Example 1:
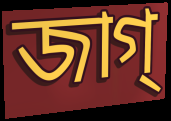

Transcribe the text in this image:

জাগ্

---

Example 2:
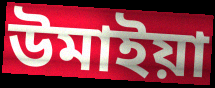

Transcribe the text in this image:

উমাইয়া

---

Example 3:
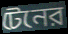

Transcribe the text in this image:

টেনের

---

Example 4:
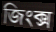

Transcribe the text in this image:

জিংক্স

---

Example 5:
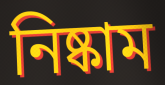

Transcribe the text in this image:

নিষ্কাম